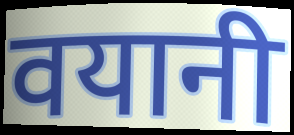
वयानी